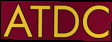
ATDC